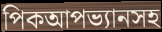
পিকআপভ্যানসহ